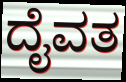
ದೈವತ